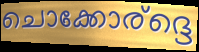
ചൊക്കോര്ദ്ദെ